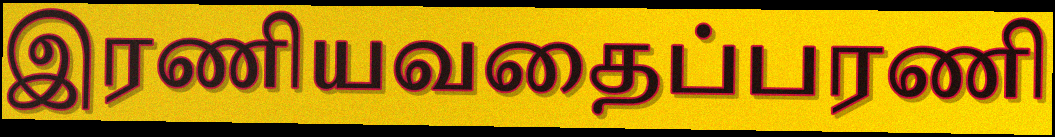
இரணியவதைப்பரணி